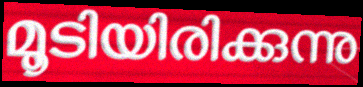
മൂടിയിരിക്കുന്നു